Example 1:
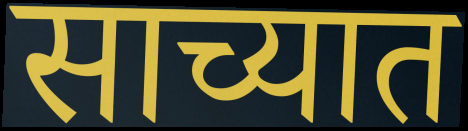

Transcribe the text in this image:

साच्यात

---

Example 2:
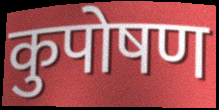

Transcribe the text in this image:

कुपोषण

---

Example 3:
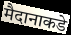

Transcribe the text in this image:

मैदानाकडे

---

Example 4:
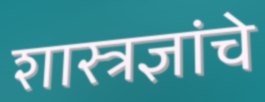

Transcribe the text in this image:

शास्त्रज्ञांचे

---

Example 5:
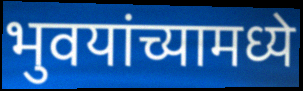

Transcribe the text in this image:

भुवयांच्यामध्ये